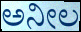
ಅನೀಲ